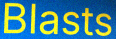
Blasts